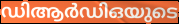
ഡിആർഡിഒയുടെ